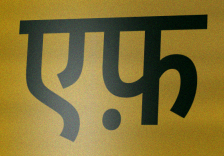
एफ़